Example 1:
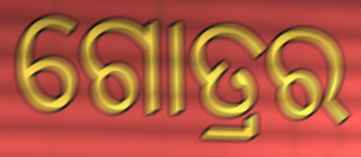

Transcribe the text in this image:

ଗୋତ୍ରର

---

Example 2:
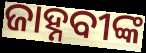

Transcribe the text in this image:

ଜାହ୍ନବୀଙ୍କ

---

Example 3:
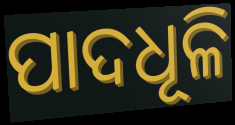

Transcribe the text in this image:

ପାଦଧୂଳି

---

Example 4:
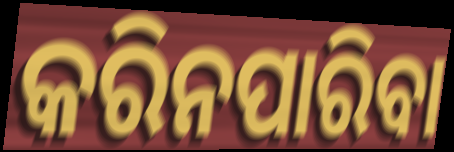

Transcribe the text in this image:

କରିନପାରିବା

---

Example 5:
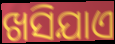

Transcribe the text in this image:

ଖସିଯାଏ